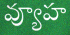
వ్యూహ